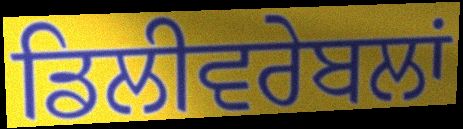
ਡਿਲੀਵਰੇਬਲਾਂ